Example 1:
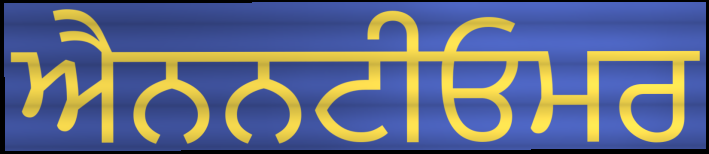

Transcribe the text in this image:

ਐਨਨਟੀਓਮਰ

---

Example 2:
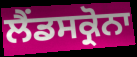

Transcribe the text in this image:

ਲੈਂਡਸਕ੍ਰੋਨਾ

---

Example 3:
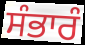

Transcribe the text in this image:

ਸੰਭਾਰੰ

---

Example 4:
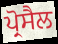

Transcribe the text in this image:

ਪ੍ਰੋਸੈਲ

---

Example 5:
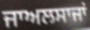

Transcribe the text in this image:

ਜਾਅਲਸਾਜਾਂ